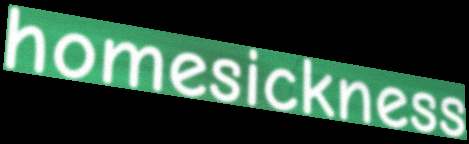
homesickness